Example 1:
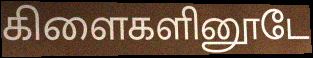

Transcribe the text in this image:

கிளைகளினூடே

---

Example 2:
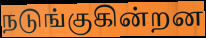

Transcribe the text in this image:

நடுங்குகின்றன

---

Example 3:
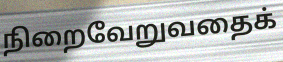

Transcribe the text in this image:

நிறைவேறுவதைக்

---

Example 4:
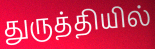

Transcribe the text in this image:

துருத்தியில்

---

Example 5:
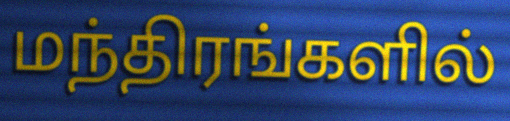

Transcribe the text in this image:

மந்திரங்களில்